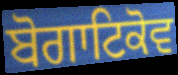
ਬੋਗਾਟਿਕੋਵ